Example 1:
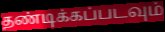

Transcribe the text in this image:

தண்டிக்கப்படவும்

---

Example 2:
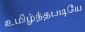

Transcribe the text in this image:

உமிழ்ந்தபடியே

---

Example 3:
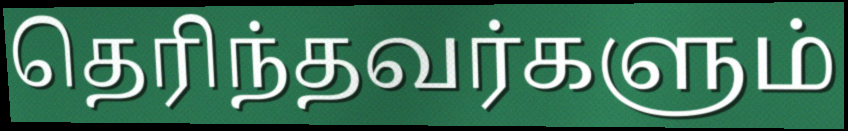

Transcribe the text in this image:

தெரிந்தவர்களும்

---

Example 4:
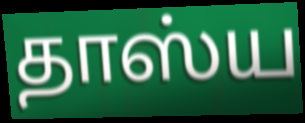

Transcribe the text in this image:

தாஸ்ய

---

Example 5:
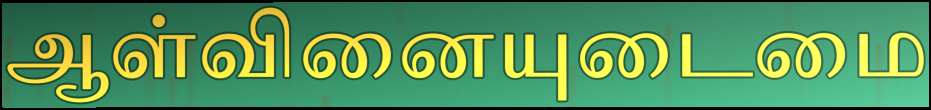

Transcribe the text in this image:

ஆள்வினையுடைமை